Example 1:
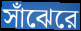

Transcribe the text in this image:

সাঁঝেরে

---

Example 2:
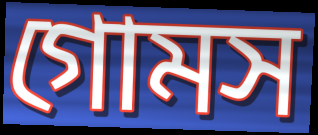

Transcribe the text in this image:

গোমস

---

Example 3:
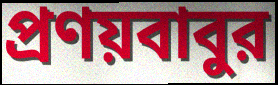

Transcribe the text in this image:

প্রণয়বাবুর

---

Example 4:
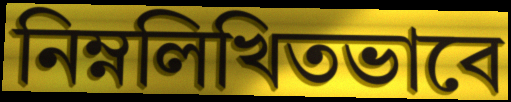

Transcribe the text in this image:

নিম্নলিখিতভাবে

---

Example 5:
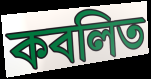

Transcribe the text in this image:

কবলিত